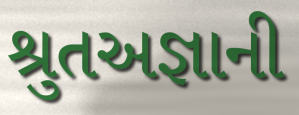
શ્રુતઅજ્ઞાની